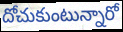
దోచుకుంటున్నారో